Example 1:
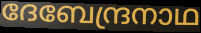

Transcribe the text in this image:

ദേബേന്ദ്രനാഥ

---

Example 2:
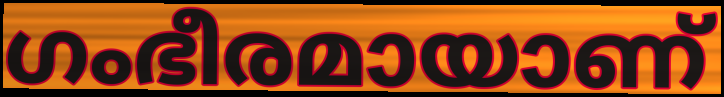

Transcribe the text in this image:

ഗംഭീരമായാണ്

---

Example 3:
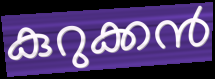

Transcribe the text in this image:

കുറുക്കൻ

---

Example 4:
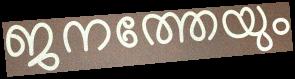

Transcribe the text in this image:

ജനത്തേയും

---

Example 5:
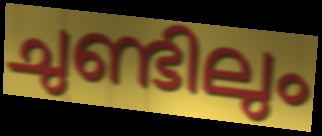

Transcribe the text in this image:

ചുണ്ടിലും